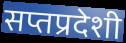
सप्तप्रदेशी